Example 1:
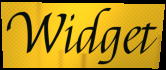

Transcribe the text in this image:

Widget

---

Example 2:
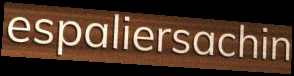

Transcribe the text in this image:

espaliersachin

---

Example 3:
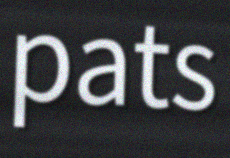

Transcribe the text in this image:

pats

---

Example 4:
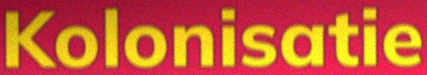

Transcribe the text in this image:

Kolonisatie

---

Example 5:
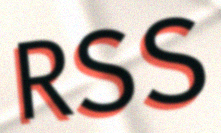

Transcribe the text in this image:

RSS